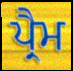
ਪ੍ਰੈਮ